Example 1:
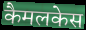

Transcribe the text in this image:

कैमलकेस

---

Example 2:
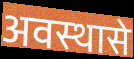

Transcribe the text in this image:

अवस्थासे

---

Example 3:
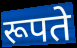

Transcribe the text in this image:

रूपते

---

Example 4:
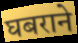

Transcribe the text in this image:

घबराने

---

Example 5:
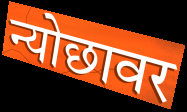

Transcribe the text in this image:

न्योछावर